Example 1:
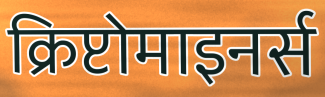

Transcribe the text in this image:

क्रिप्टोमाइनर्स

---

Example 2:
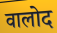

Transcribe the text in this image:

वालोद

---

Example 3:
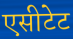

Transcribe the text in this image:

एसीटेट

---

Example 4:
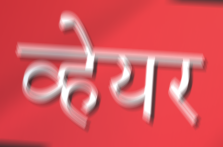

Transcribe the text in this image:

व्हेयर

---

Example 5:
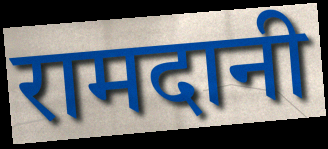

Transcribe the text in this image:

रामदानी